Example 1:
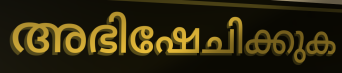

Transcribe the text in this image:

അഭിഷേചിക്കുക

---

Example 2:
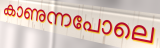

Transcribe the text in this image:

കാണുന്നപോലെ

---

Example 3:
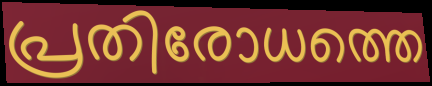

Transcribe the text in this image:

പ്രതിരോധത്തെ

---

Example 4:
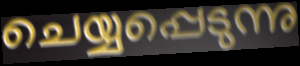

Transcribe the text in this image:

ചെയ്യപ്പെടുന്നു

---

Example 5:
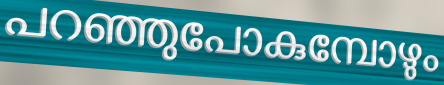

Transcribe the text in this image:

പറഞ്ഞുപോകുമ്പോഴും